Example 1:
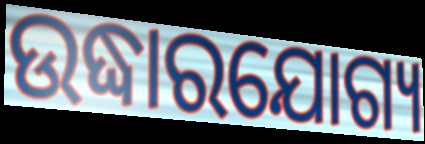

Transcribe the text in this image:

ଉଦ୍ଧାରଯୋଗ୍ୟ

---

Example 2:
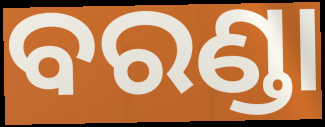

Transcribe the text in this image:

ବରଣ୍ଡା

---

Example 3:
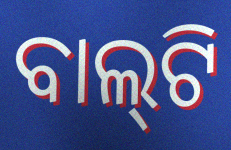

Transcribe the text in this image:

ବାଲ୍‍ଟି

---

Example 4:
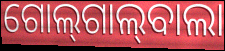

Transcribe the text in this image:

ଗୋଲ୍‍ଗାଲ୍‍ବାଲା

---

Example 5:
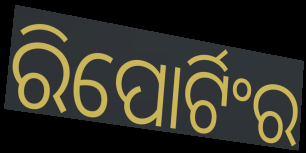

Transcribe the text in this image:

ରିପୋର୍ଟିଂର